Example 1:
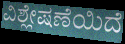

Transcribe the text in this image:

ವಿಶ್ಲೇಷಣೆಯಿದೆ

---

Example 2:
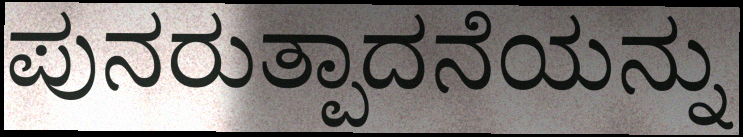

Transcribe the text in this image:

ಪುನರುತ್ಪಾದನೆಯನ್ನು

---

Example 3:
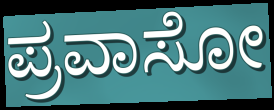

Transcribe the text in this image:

ಪ್ರವಾಸೋ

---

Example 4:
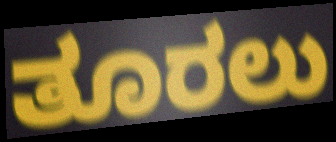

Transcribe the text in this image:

ತೂರಲು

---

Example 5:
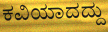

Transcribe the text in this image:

ಕವಿಯಾದದ್ದು